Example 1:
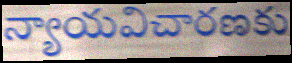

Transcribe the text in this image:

న్యాయవిచారణకు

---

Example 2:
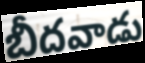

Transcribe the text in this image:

బీదవాడు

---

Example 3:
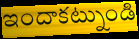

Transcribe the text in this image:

ఇందాకట్నుండి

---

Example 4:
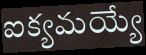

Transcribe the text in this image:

ఐక్యమయ్యే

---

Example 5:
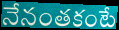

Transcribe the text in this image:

నేనంతకంటే